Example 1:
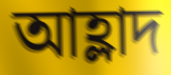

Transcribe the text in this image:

আহ্লাদ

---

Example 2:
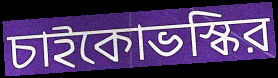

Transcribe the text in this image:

চাইকোভস্কির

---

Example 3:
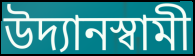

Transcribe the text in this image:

উদ্যানস্বামী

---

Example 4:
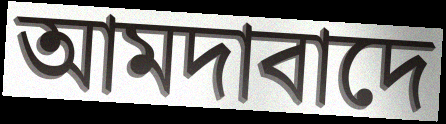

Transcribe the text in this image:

আমদাবাদে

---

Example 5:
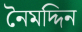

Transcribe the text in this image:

নৈমদ্দিন